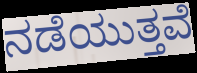
ನಡೆಯುತ್ತವೆ